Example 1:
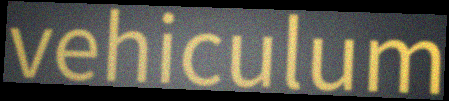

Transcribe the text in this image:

vehiculum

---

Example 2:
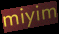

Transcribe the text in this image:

miyim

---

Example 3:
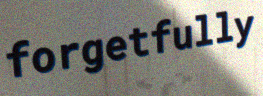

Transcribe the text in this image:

forgetfully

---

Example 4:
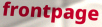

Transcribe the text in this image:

frontpage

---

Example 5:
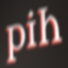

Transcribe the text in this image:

pih